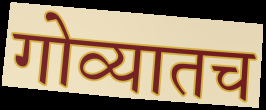
गोव्यातच